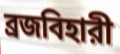
ব্রজবিহারী